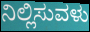
ನಿಲ್ಲಿಸುವಳು